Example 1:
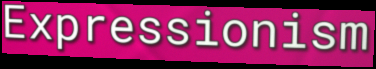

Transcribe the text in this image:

Expressionism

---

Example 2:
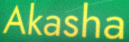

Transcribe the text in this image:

Akasha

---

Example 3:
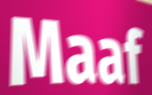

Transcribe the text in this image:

Maaf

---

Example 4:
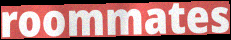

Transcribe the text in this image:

roommates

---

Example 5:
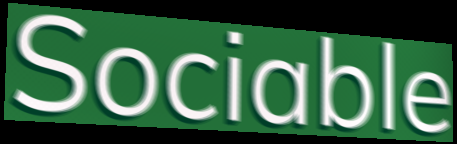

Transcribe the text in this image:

Sociable